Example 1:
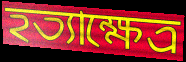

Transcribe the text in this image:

হত্যাক্ষেত্র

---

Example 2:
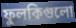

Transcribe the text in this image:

ফুলকিগুলো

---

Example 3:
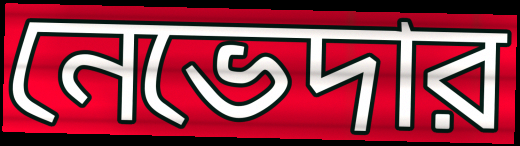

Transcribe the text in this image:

নেভেদার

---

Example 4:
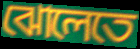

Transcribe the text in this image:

ঝোলেতে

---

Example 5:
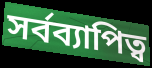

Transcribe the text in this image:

সর্বব্যাপিত্ব